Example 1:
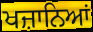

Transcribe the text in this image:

ਖਜ਼ਾਨਿਆਂ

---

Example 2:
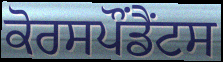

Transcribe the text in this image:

ਕੋਰਸਪੌਂਡੈਂਟਸ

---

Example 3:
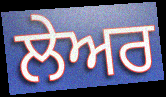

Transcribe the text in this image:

ਲੇਅਰ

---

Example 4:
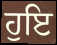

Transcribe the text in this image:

ਹੁਇ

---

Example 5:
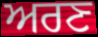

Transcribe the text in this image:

ਅਰਣ